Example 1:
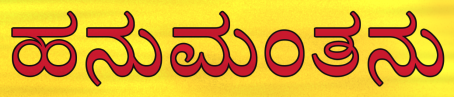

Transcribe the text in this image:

ಹನುಮಂತನು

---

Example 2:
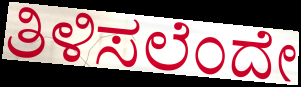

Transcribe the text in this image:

ತಿಳಿಸಲೆಂದೇ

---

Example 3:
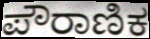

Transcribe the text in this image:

ಪೌರಾಣಿಕ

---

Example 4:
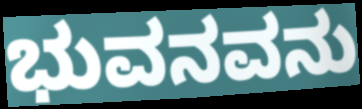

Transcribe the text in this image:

ಭುವನವನು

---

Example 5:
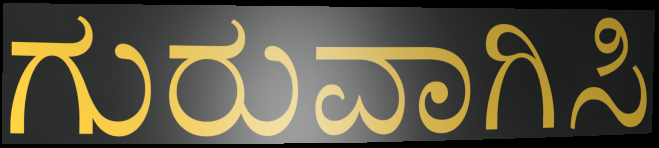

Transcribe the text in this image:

ಗುರುವಾಗಿಸಿ